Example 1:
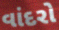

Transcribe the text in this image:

વાંદરો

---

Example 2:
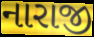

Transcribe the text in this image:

નારાજી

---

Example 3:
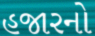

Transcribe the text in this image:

હજારનો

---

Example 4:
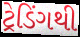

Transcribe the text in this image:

ટ્રેડિંગથી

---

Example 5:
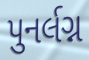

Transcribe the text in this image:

પુનર્લગ્ન